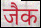
जैक